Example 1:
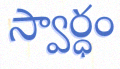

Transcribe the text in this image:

స్వార్ధం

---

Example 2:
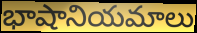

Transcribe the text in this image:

భాషానియమాలు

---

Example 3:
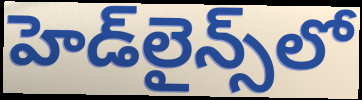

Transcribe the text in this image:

హెడ్‌లైన్స్‌లో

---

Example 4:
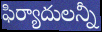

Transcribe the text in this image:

ఫిర్యాదులన్నీ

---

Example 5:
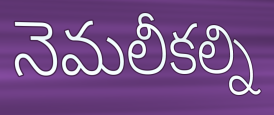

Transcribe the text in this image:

నెమలీకల్ని